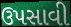
ઉપસાવી